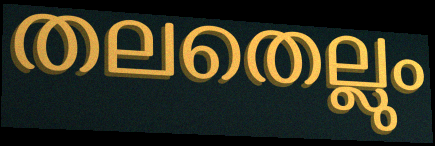
തലതെല്ലും